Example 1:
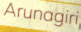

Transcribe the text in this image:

Arunagiri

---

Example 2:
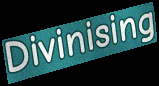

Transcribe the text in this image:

Divinising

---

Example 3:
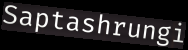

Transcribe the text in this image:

Saptashrungi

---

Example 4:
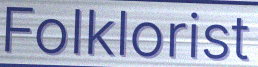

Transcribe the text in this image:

Folklorist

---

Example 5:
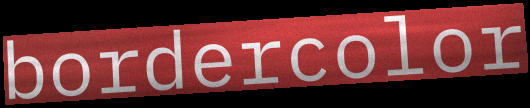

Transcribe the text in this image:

bordercolor